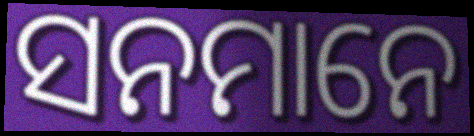
ସନମାନେ